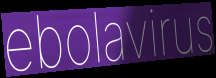
ebolavirus